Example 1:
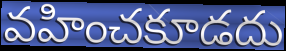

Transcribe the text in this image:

వహించకూడదు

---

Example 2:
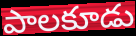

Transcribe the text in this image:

పాలకూడు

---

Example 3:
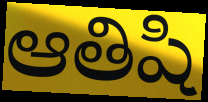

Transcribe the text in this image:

ఆతిషి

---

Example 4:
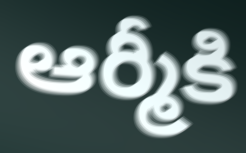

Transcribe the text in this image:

ఆర్మీకి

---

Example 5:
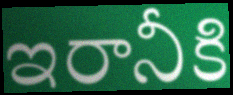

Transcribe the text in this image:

ఇరానీకి